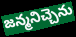
జన్మనిచ్చెను